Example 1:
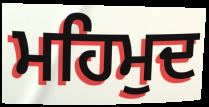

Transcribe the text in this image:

ਮਹਿਮੁਦ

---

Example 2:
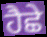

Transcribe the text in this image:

ਹੈਛੇ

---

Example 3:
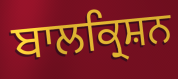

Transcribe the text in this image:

ਬਾਲਕ੍ਰਿਸ਼ਨ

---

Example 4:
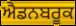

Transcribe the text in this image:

ਐਡਨਬਰੂਕ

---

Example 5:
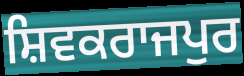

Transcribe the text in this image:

ਸ਼ਿਵਕਰਾਜਪੁਰ